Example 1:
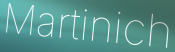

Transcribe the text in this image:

Martinich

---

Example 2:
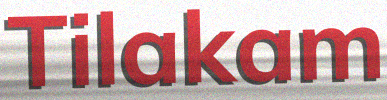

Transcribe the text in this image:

Tilakam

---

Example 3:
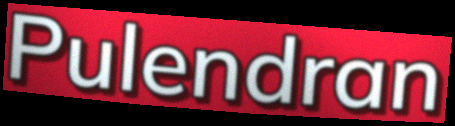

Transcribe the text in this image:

Pulendran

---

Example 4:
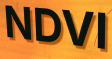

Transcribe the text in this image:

NDVI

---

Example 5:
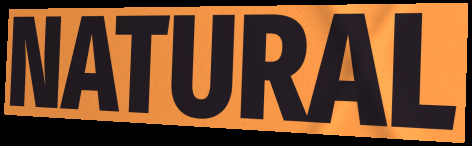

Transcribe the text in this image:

NATURAL